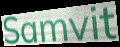
Samvit